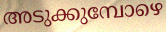
അടുക്കുമ്പോഴെ